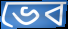
ভেব